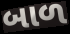
બાળ